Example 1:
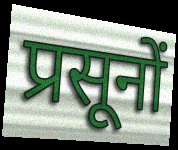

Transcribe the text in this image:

प्रसूनों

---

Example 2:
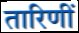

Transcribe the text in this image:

तारिणीं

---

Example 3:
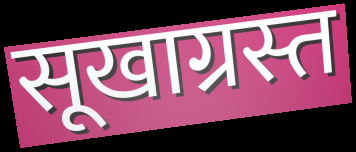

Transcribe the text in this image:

सूखाग्रस्‍त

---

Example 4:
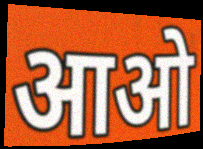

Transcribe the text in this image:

आओ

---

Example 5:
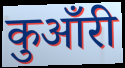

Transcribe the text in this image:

कुआँरी